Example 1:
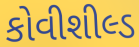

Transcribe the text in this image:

કોવીશીલ્ડ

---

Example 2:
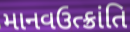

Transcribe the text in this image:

માનવઉત્ક્રાંતિ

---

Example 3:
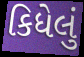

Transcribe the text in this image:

કિધેલું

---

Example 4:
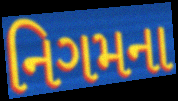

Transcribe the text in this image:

નિગમના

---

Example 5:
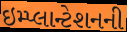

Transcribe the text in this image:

ઇમ્પ્લાન્ટેશનની